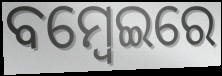
ବମ୍ବେଇରେ